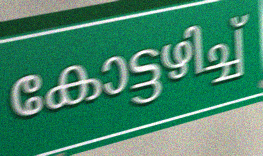
കോട്ടഴിച്ച്